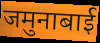
जमुनाबाई